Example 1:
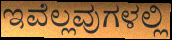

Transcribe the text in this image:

ಇವೆಲ್ಲವುಗಳಲ್ಲಿ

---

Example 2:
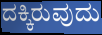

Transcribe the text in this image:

ದಕ್ಕಿರುವುದು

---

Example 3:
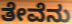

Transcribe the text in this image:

ತೇವೆನು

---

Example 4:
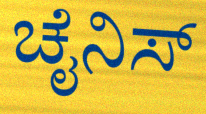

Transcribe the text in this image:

ಚೈನಿಸ್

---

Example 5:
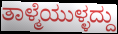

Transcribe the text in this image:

ತಾಳ್ಮೆಯುಳ್ಳದ್ದು